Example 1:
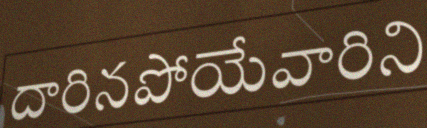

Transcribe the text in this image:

దారినపోయేవారిని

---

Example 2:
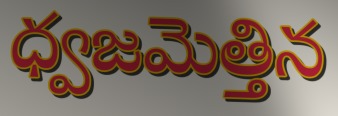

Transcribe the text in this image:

ధ్వజమెత్తిన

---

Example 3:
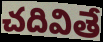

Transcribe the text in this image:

చదివితే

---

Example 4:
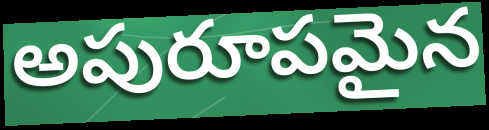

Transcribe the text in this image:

అపురూపమైన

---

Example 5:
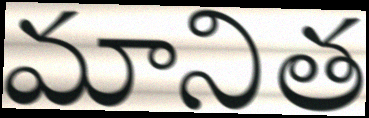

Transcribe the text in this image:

మానిత